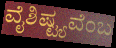
ವೈಶಿಷ್ಟ್ಯವೆಂಬ